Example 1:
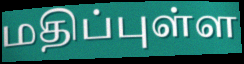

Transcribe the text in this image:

மதிப்புள்ள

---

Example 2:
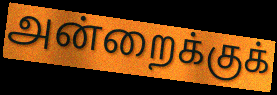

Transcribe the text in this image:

அன்றைக்குக்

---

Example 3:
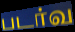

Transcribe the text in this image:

படர்வ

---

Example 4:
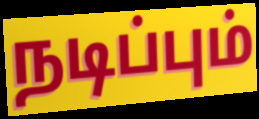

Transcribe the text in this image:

நடிப்பும்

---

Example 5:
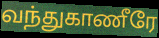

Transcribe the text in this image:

வந்துகாணீரே